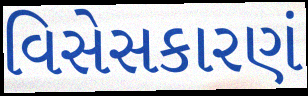
વિસેસકારણં